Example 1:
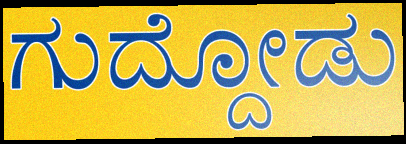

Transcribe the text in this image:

ಗುದ್ದೋಡು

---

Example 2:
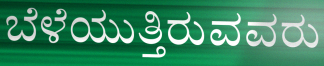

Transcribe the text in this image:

ಬೆಳೆಯುತ್ತಿರುವವರು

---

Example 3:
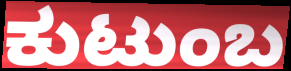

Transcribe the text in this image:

ಕುಟುಂಬ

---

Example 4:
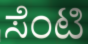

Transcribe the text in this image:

ಸೆಂಟಿ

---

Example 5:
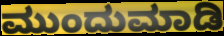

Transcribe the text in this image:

ಮುಂದುಮಾಡಿ